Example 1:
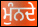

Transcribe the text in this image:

ਮੁੰਨਦੇ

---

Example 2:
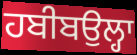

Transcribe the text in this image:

ਹਬੀਬਉਲ੍ਹਾ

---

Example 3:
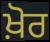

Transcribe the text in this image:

ਖ਼ੋਰ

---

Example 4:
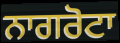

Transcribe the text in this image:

ਨਾਗਰੋਟਾ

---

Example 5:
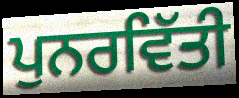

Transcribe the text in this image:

ਪੁਨਰਵਿੱਤੀ